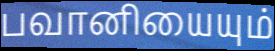
பவானியையும்